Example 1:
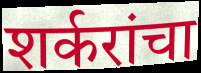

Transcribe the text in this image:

शर्करांचा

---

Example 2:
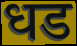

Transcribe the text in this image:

धड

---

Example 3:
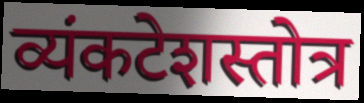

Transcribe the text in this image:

व्यंकटेशस्तोत्र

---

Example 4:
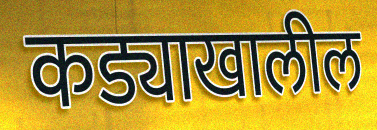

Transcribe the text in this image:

कड्याखालील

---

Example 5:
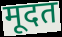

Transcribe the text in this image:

मूदत